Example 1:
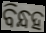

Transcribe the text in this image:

ବିନ୍ଧହ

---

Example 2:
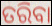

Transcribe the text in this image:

ତରିବା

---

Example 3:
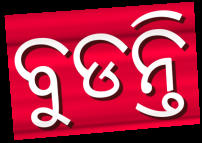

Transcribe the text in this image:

ବୁଡନ୍ତି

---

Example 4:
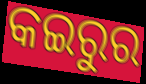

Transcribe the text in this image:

କଇରୁର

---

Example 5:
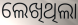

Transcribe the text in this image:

ଲେଖିଥିଲା